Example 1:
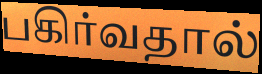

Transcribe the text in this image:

பகிர்வதால்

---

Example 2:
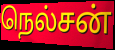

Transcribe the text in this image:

நெல்சன்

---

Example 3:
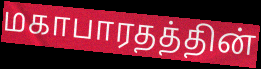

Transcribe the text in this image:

மகாபாரதத்தின்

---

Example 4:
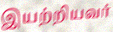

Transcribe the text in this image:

இயற்றியவர்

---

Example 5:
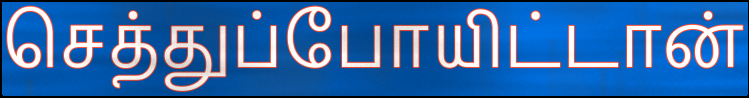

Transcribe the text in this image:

செத்துப்போயிட்டான்